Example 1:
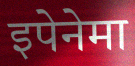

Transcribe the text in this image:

इपेनेमा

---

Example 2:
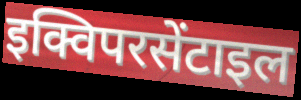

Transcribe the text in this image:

इक्विपरसेंटाइल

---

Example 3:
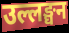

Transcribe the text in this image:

उल्लङ्घन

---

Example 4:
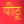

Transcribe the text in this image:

पीठू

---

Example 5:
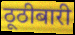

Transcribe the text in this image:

ठूठीबारी